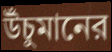
উঁচুমানের